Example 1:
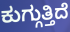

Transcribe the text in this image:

ಕುಗ್ಗುತ್ತಿದೆ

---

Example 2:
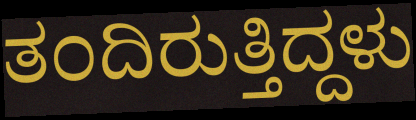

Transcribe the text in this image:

ತಂದಿರುತ್ತಿದ್ದಳು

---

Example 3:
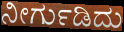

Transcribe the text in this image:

ನೀರ್ಗುಡಿದು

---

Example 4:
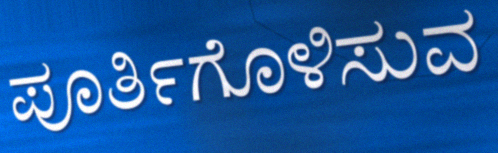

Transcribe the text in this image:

ಪೂರ್ತಿಗೊಳಿಸುವ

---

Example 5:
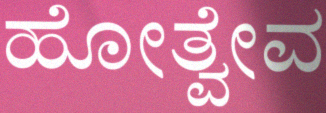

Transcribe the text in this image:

ಹೋತ್ವೇವ